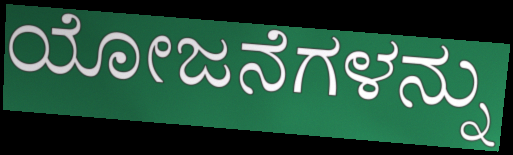
ಯೋಜನೆಗಳನ್ನು